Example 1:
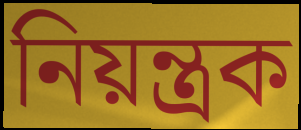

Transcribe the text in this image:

নিয়ন্ত্ৰক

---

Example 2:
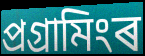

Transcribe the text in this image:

প্ৰগ্ৰামিংৰ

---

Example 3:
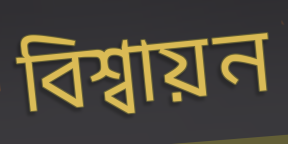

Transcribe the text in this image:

বিশ্বায়ন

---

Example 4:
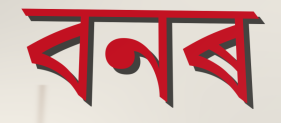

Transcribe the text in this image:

বনৰ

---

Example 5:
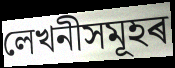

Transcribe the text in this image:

লেখনীসমূহৰ